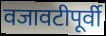
वजावटीपूर्वी